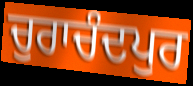
ਚੁਰਾਚੰਦਪੁਰ